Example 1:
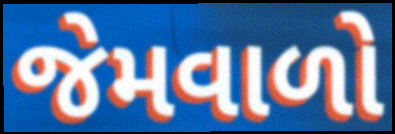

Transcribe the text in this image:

જેમવાળો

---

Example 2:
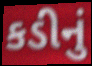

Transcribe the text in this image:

કડીનું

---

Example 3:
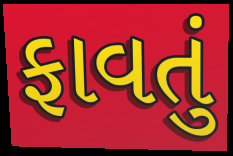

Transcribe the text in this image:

ફાવતું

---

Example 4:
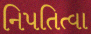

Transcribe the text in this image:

નિપતિત્વા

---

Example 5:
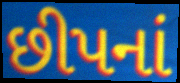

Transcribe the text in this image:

છીપનાં